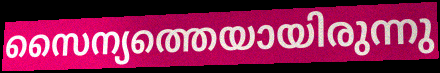
സൈന്യത്തെയായിരുന്നു